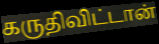
கருதிவிட்டான்